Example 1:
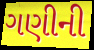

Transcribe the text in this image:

ગણીની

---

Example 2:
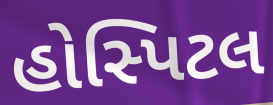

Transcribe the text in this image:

હોસ્પિટલ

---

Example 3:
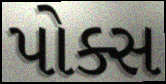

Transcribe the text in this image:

પોક્સ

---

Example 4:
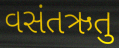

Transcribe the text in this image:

વસંતઋતુ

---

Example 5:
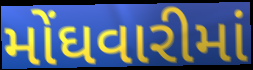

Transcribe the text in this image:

મોંઘવારીમાં